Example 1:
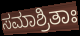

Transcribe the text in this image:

ಸಮಾಶ್ರಿತಾಃ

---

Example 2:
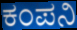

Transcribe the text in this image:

ಕಂಪನಿ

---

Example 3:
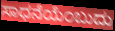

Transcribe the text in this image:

ಸಾಧನೆಯೆಂಬುದು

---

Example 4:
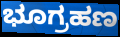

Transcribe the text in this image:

ಭೂಗ್ರಹಣ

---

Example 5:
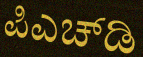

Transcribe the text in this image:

ಪಿಎಚ್‌ಡಿ